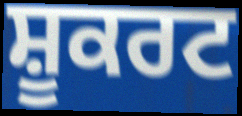
ਸ਼ੂਕਰਟ